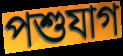
পশুযাগ